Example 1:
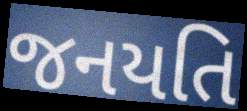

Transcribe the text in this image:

જનયતિ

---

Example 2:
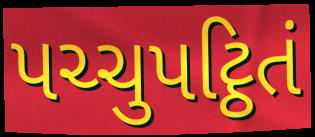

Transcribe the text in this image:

પચ્ચુપટ્ઠિતં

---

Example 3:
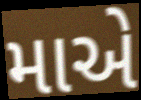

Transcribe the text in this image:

માએ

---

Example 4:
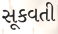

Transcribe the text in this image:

સૂકવતી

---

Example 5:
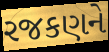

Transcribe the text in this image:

રજકણને